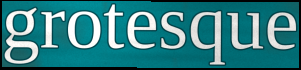
grotesque